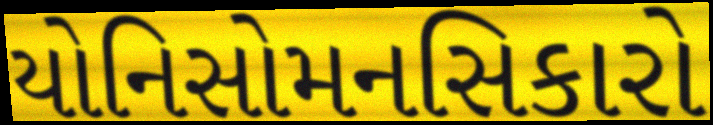
યોનિસોમનસિકારો